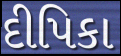
દીપિકા